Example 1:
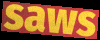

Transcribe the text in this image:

saws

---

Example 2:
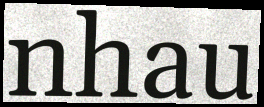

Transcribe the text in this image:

nhau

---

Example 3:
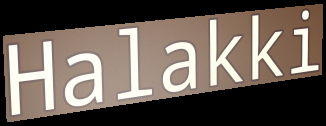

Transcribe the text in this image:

Halakki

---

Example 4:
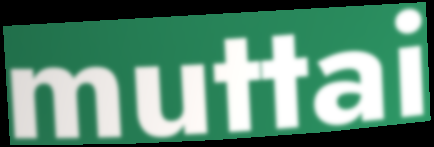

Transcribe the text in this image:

muttai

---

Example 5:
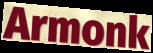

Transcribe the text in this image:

Armonk